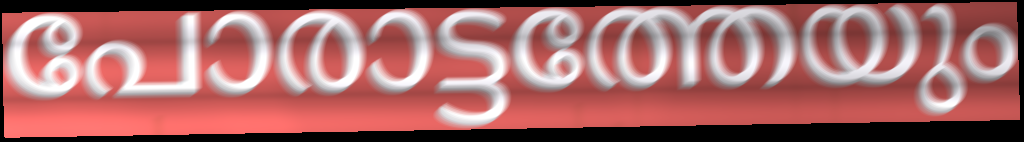
പോരാട്ടത്തേയും